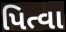
પિત્વા